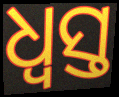
ଧ୍ବସ୍ତ